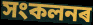
সংকলনৰ